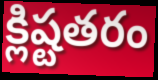
క్లిష్టతరం